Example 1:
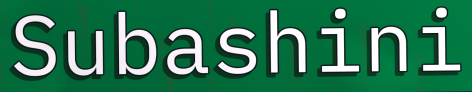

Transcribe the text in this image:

Subashini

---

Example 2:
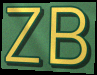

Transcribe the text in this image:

ZB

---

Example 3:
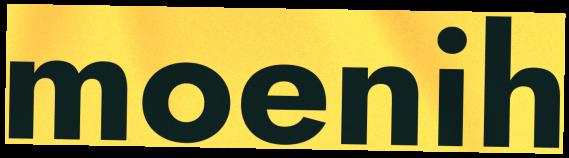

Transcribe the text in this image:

moenih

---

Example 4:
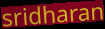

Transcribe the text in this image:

sridharan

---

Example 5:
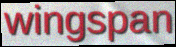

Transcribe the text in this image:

wingspan